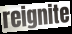
reignite